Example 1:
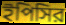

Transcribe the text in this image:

ইপিসির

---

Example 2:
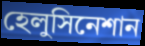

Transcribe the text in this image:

হেলুসিনেশান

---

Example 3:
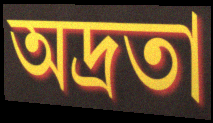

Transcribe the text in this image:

অদ্রতা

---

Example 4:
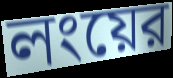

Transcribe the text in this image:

লংয়ের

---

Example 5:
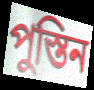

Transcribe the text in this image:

পুস্তিন